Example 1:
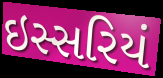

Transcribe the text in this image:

ઇસ્સરિયં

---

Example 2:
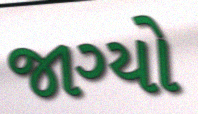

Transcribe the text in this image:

જાગ્યો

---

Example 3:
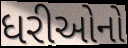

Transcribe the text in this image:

ધરીઓનો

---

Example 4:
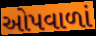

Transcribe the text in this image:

ઓપવાળાં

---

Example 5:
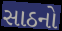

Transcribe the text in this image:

સાઠનો